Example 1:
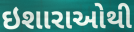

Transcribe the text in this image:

ઇશારાઓથી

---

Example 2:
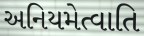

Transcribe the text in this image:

અનિયમેત્વાતિ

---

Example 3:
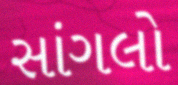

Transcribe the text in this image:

સાંગલો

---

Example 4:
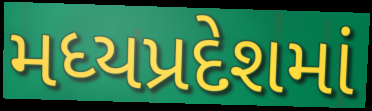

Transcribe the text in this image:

મધ્યપ્રદેશમાં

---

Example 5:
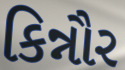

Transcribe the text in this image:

કિન્નૌર